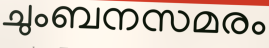
ചുംബനസമരം